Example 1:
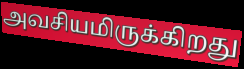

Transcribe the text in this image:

அவசியமிருக்கிறது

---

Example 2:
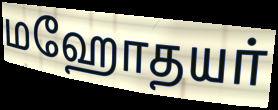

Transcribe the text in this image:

மஹோதயர்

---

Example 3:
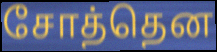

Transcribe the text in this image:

சோத்தென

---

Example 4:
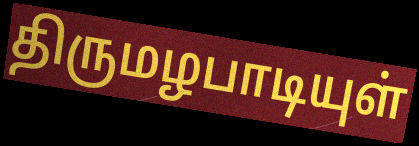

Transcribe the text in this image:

திருமழபாடியுள்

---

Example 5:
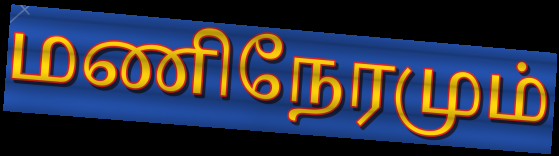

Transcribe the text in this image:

மணிநேரமும்